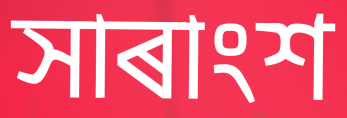
সাৰাংশ